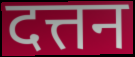
दत्तन